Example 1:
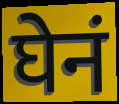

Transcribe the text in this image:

घेनं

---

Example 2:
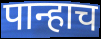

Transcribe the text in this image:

पान्हाच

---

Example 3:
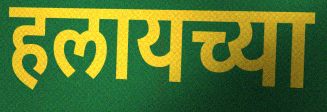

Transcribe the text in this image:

हलायच्या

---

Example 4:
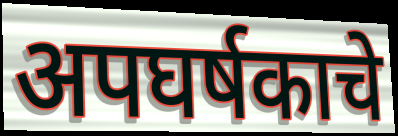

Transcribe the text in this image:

अपघर्षकाचे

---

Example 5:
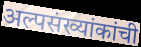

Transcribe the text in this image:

अल्पसंख्यांकांची